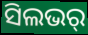
ସିଲଭର୍